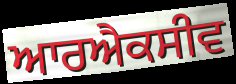
ਆਰਐਕਸੀਵ